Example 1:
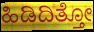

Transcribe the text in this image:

ಹಿಡಿದಿತ್ತೋ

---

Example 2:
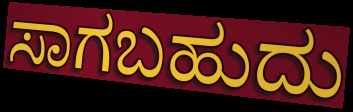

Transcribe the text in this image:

ಸಾಗಬಹುದು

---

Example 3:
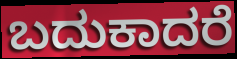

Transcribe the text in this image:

ಬದುಕಾದರೆ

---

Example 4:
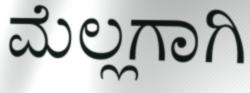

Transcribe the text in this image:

ಮೆಲ್ಲಗಾಗಿ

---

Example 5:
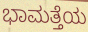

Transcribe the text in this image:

ಭಾಮತ್ತೆಯ